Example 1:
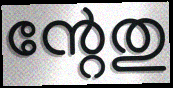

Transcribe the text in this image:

ന്റേതു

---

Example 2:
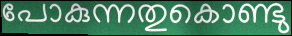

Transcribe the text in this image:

പോകുന്നതുകൊണ്ടു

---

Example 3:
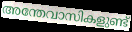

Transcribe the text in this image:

അന്തേവാസികളുണ്ട്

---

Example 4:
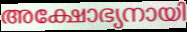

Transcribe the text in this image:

അക്ഷോഭ്യനായി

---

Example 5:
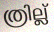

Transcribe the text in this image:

ത്രില്ല്